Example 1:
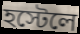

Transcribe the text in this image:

হস্টেলে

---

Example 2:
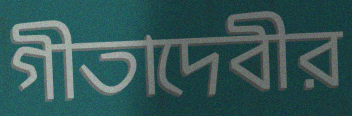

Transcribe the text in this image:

গীতাদেবীর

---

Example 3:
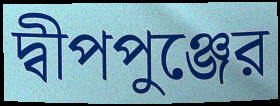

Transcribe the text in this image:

দ্বীপপুঞ্জের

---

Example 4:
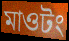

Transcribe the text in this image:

মাওটং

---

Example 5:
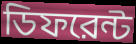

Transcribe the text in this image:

ডিফরেন্ট